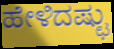
ಹೇಳಿದಷ್ಟು